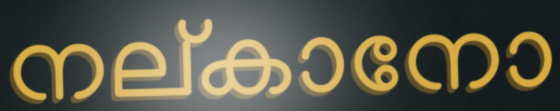
നല്കാനോ